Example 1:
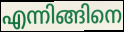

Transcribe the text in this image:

എന്നിങ്ങിനെ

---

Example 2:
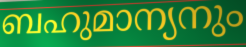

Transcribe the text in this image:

ബഹുമാന്യനും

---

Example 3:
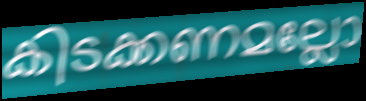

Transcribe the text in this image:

കിടക്കണമല്ലോ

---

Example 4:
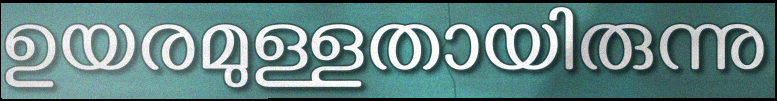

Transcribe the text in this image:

ഉയരമുള്ളതായിരുന്നു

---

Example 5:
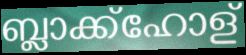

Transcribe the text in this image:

ബ്ലാക്ക്ഹോള്